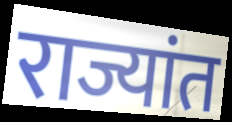
राज्यांत